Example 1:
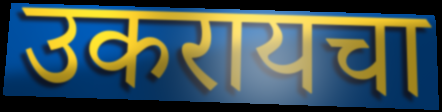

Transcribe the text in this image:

उकरायचा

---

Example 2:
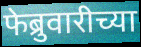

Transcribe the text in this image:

फेब्रुवारीच्या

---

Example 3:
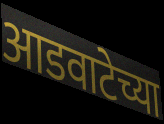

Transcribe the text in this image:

आडवाटेच्या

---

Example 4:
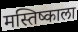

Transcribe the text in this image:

मस्तिष्काला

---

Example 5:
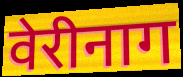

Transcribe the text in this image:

वेरीनाग